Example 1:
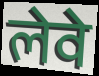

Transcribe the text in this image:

लेवे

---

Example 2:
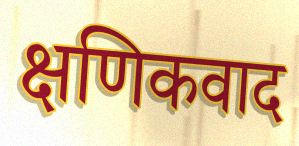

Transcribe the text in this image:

क्षणिकवाद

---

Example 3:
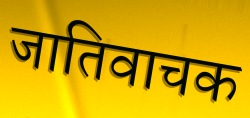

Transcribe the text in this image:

जातिवाचक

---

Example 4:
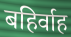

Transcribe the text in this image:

बहिर्वाह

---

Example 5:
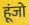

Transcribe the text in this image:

हूंजो